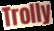
Trolly